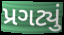
પ્રગટ્યું